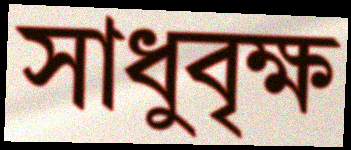
সাধুবৃক্ষ